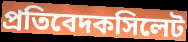
প্রতিবেদকসিলেট